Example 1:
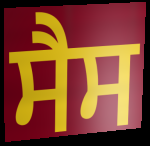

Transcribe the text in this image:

ਸੈਸ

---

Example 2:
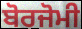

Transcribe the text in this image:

ਬੋਰਜੋਮੀ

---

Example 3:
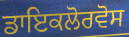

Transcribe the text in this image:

ਡਾਇਕਲੋਰਵੋਸ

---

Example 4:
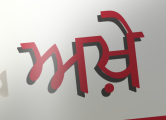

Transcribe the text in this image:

ਅਖ਼ੇ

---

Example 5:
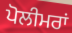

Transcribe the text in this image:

ਪੋਲੀਮਰਾਂ